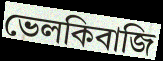
ভেলকিবাজি